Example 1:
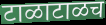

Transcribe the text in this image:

टाळाटाळच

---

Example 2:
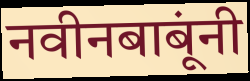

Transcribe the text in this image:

नवीनबाबूंनी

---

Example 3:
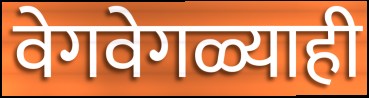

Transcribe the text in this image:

वेगवेगळ्याही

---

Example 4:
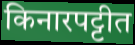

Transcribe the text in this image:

किनारपट्टीत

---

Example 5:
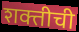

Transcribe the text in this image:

शक्तीची